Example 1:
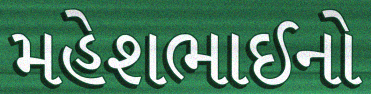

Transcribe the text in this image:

મહેશભાઈનો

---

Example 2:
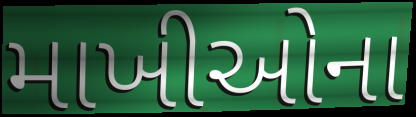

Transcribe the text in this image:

માખીઓના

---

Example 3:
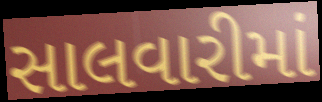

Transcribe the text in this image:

સાલવારીમાં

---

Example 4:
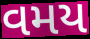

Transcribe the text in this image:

વમય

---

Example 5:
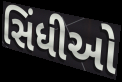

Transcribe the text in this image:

સિંધીઓ